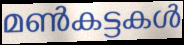
മൺകട്ടകൾ